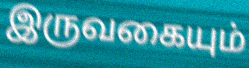
இருவகையும்